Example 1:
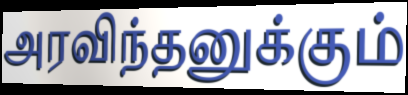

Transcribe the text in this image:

அரவிந்தனுக்கும்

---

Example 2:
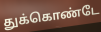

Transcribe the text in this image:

துக்கொண்டே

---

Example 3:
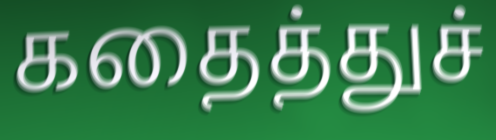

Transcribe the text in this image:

கதைத்துச்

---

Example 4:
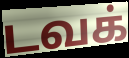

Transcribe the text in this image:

டவக்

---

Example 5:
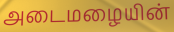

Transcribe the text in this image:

அடைமழையின்